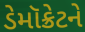
ડેમૉક્રેટને